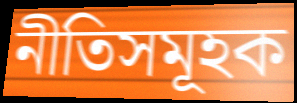
নীতিসমূহক